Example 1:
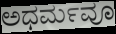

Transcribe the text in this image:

ಅಧರ್ಮವೂ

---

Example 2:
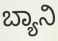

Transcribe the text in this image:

ಬ್ಯಾನಿ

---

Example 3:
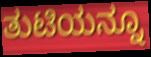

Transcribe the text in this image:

ತುಟಿಯನ್ನೂ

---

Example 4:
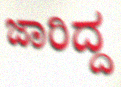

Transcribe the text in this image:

ಜಾರಿದ್ದ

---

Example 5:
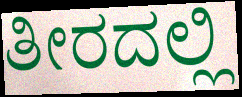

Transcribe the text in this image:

ತೀರದಲ್ಲಿ